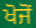
ਖੋਜੋਂ